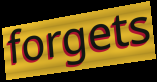
forgets